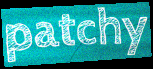
patchy